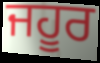
ਜਹੂਰ